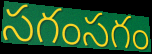
సగంసగం